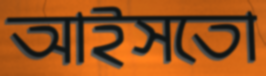
আইসতো